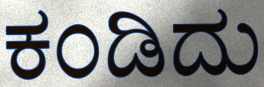
ಕಂಡಿದು